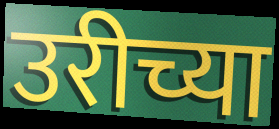
उरीच्या